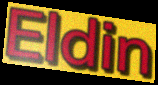
Eldin